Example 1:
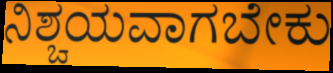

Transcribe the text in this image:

ನಿಶ್ಚಯವಾಗಬೇಕು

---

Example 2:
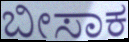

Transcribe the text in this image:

ಬೀಸಾಕ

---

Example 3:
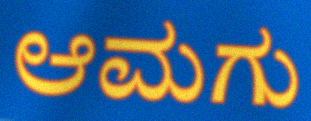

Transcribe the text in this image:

ಆಮಗು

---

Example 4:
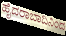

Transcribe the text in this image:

ಹೈದರಾಬಾದಿನಿಂದ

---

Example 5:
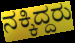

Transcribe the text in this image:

ನಕ್ಕಿದ್ದರು